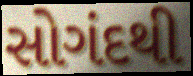
સોગંદથી